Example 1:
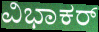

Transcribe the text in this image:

ವಿಭಾಕರ್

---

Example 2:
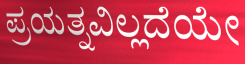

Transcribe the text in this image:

ಪ್ರಯತ್ನವಿಲ್ಲದೆಯೇ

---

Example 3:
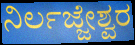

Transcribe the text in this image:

ನಿರ್ಲಜ್ಜೇಶ್ವರ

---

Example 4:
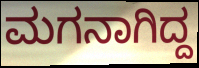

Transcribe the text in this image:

ಮಗನಾಗಿದ್ದ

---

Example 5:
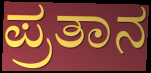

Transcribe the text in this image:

ಪ್ರತಾನ